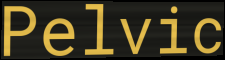
Pelvic